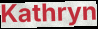
Kathryn